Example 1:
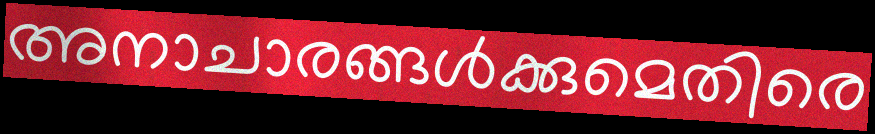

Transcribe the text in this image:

അനാചാരങ്ങൾക്കുമെതിരെ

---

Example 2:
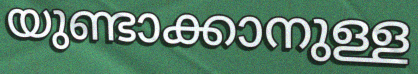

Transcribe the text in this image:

യുണ്ടാക്കാനുള്ള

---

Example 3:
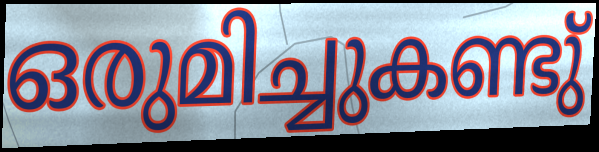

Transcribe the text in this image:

ഒരുമിച്ചുകണ്ടു്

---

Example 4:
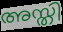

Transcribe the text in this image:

അസ്തി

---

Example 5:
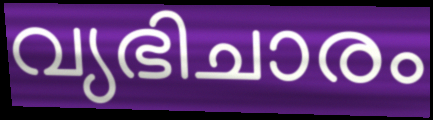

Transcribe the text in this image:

വ്യഭിചാരം